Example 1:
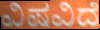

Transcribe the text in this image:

ವಿಷವಿದೆ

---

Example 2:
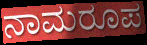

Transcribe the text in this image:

ನಾಮರೂಪ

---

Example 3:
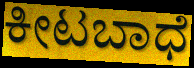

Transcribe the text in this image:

ಕೀಟಬಾಧೆ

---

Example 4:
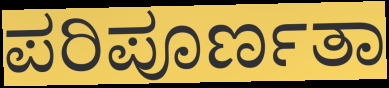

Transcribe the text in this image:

ಪರಿಪೂರ್ಣತಾ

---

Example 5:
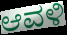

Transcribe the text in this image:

ಆವಳಿ